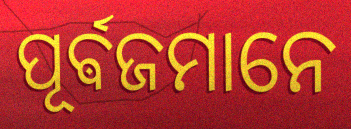
ପୂର୍ଵଜମାନେ